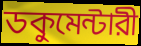
ডকুমেন্টারী